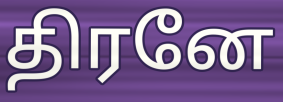
திரனே